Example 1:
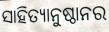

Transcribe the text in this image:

ସାହିତ୍ୟାନୁଷ୍ଠାନର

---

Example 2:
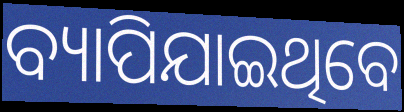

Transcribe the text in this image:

ବ୍ୟାପିଯାଇଥିବେ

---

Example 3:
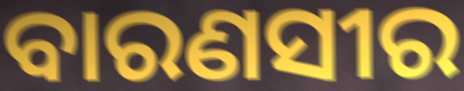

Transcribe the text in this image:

ବାରଣସୀର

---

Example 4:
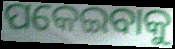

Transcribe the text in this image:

ପକେଇବାକୁ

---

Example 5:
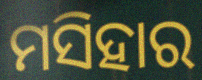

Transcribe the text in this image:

ମସିହାର